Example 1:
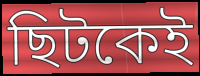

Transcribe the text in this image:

ছিটকেই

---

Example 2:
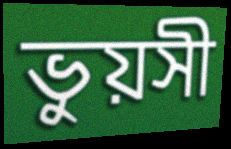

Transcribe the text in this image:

ভুয়সী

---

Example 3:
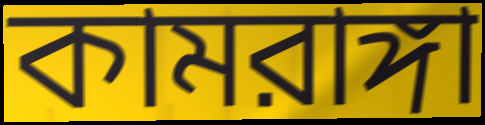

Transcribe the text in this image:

কামরাঙ্গা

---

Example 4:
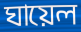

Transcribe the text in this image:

ঘায়েল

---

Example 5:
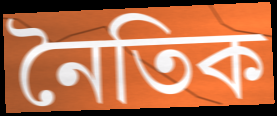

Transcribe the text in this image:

নৈতিক